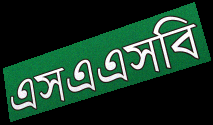
এসএএসবি